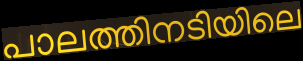
പാലത്തിനടിയിലെ